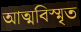
আত্মবিস্মৃত